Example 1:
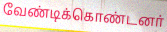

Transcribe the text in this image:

வேண்டிக்கொண்டனர்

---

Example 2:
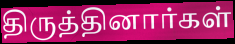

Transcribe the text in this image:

திருத்தினார்கள்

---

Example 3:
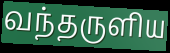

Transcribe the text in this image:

வந்தருளிய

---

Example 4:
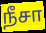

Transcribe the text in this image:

நீசா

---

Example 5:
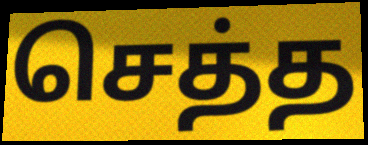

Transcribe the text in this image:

செத்த